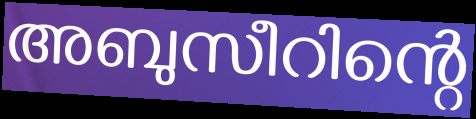
അബുസീറിന്റെ